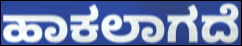
ಹಾಕಲಾಗದೆ